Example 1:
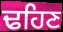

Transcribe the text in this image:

ਢਹਿਣ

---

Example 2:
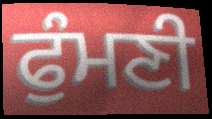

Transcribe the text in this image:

ਫੁੰਮਣੀ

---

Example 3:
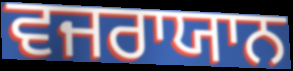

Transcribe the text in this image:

ਵਜਰਾਯਾਨ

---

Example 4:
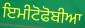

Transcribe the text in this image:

ਇਮੀਟੋਫੋਬੀਆ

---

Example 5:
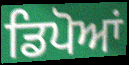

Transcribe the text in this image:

ਡਿਪੋਆਂ